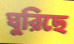
ঘুরিছে